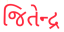
જિતેન્દ્ર